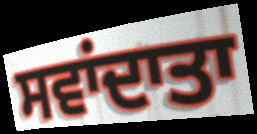
ਸਵਾਂਦਾਤਾ